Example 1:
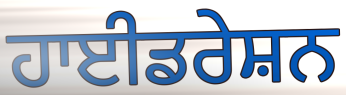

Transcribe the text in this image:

ਹਾਈਡਰੇਸ਼ਨ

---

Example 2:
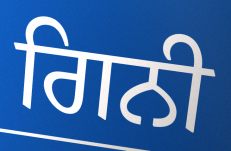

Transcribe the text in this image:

ਗਿਨੀ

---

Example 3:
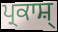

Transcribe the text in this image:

ਪ੍ਰਕਾਸ਼੍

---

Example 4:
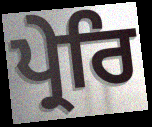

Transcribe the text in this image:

ਪ੍ਰੇਰਿ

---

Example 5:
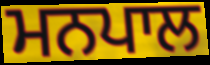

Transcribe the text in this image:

ਮਨਪਾਲ